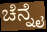
ಚೆನ್ನೈ